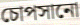
চোপসানো